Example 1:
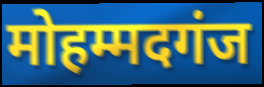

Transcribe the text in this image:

मोहम्मदगंज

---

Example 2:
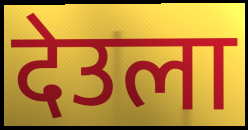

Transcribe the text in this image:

देउला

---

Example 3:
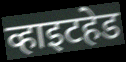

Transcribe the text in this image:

व्हाइटहेड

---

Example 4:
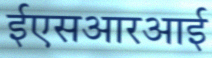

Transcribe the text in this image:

ईएसआरआई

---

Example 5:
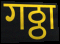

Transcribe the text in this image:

गठ्ठा